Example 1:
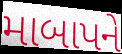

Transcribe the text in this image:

માબાપને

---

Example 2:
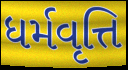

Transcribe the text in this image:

ધર્મવૃત્તિ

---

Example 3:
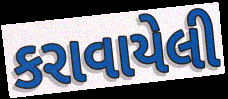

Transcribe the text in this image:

કરાવાયેલી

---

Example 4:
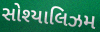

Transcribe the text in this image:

સોશ્યાલિઝમ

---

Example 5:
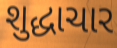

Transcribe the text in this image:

શુદ્ધાચાર